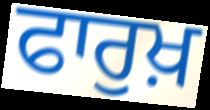
ਫਾਰੁਖ਼